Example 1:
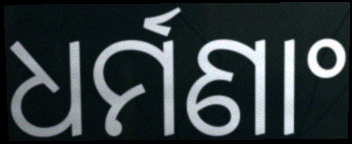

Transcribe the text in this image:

ଧର୍ମଣାଂ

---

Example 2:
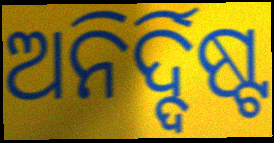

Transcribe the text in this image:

ଅନିର୍ଦ୍ଦିଷ୍ଟ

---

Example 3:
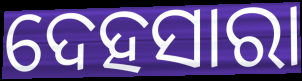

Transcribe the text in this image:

ଦେହସାରା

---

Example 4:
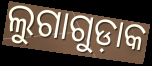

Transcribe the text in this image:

ଲୁଗାଗୁଡ଼ାକ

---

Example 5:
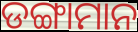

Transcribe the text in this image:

ଡଙ୍ଗାମାନ